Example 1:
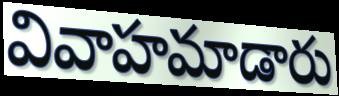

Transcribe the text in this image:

వివాహమాడారు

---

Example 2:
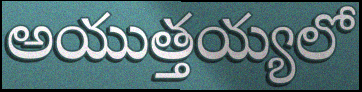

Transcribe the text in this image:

అయుత్తయ్యలో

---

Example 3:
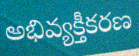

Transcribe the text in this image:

అభివ్యక్తీకరణ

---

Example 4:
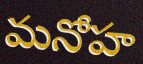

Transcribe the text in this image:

మనోహ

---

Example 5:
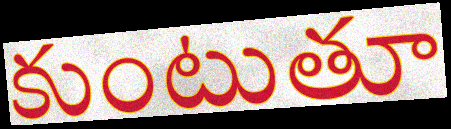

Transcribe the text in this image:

కుంటుతూ